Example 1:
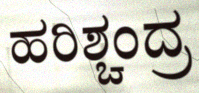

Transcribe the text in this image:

ಹರಿಶ್ಚಂದ್ರ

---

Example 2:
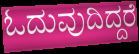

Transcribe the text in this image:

ಓದುವುದಿದ್ದರೆ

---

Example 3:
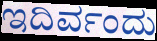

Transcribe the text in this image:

ಇದಿರ್ವಂದು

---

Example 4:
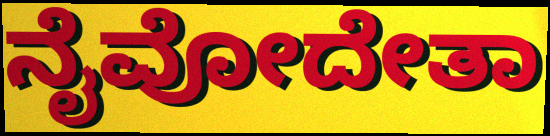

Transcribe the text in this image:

ನೈವೋದೇತಾ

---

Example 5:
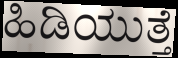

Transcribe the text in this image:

ಹಿಡಿಯುತ್ತೆ